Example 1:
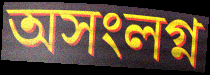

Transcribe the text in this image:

অসংলগ্ন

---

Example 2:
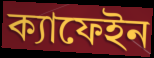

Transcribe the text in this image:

ক্যাফেইন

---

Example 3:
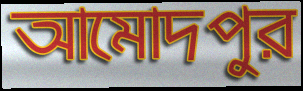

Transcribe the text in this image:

আমোদপুর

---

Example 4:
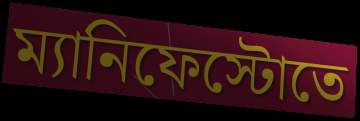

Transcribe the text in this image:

ম্যানিফেস্টোতে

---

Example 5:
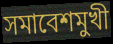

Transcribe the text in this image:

সমাবেশমুখী